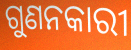
ଗୁଣନକାରୀ